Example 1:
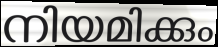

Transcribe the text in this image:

നിയമിക്കും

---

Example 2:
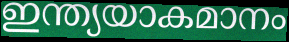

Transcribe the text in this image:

ഇന്ത്യയാകമാനം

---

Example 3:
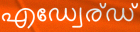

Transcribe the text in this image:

എഡ്വേര്ഡ്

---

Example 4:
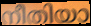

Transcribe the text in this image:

നീതിയാ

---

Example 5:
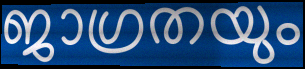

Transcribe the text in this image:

ജാഗ്രതയും